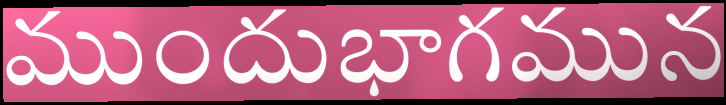
ముందుభాగమున